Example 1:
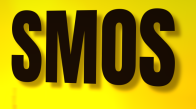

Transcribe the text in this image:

SMOS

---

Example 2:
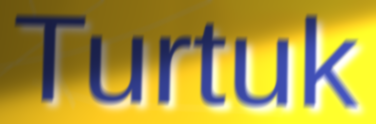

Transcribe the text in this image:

Turtuk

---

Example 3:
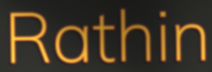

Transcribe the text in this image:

Rathin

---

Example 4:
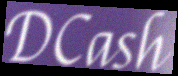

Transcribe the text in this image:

DCash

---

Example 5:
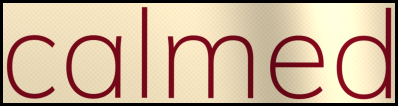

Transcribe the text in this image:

calmed